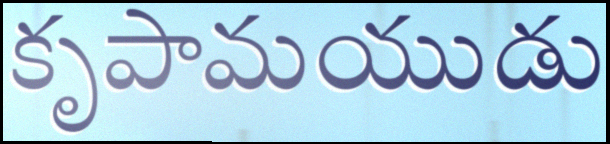
కృపామయుడు